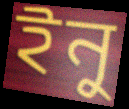
ইনু